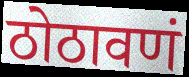
ठोठावणं